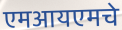
एमआयएमचे